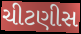
ચીટણીસ